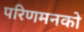
परिणमनको